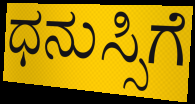
ಧನುಸ್ಸಿಗೆ